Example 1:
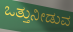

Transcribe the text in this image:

ಒತ್ತುನೀಡುವ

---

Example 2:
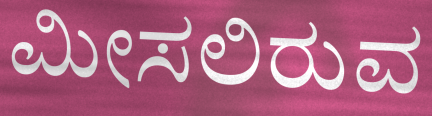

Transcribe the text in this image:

ಮೀಸಲಿರುವ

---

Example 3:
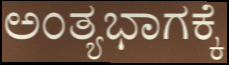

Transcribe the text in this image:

ಅಂತ್ಯಭಾಗಕ್ಕೆ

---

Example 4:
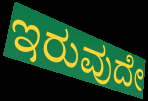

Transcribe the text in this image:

ಇರುವುದೇ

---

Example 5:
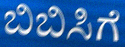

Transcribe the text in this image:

ಬಿಬಿಸಿಗೆ